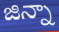
జిన్నా